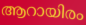
ആറായിരം